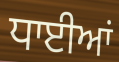
ਧਾਈਆਂ